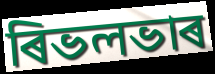
ৰিভলভাৰ